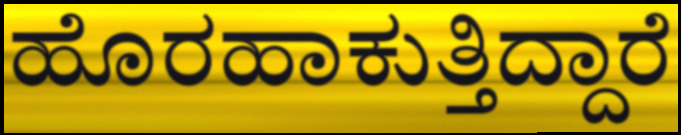
ಹೊರಹಾಕುತ್ತಿದ್ದಾರೆ